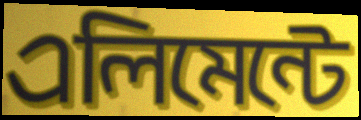
এলিমেন্টে